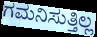
ಗಮನಿಸುತ್ತಿಲ್ಲ